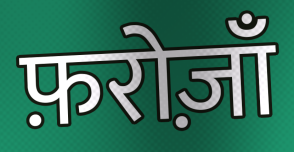
फ़रोज़ाँ